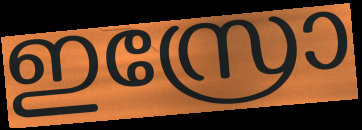
ഇസ്രോ